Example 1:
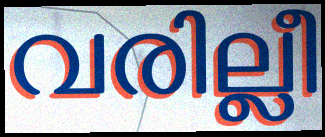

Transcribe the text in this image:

വരില്ലീ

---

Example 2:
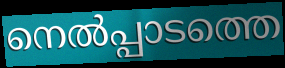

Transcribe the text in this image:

നെൽപ്പാടത്തെ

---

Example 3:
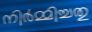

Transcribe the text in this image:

നിർമ്മിച്ചതു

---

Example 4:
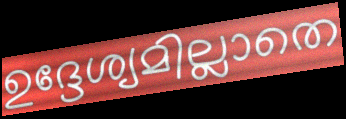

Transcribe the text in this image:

ഉദ്ദേശ്യമില്ലാതെ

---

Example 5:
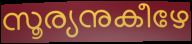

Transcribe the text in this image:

സൂര്യനുകീഴേ